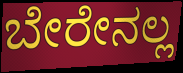
ಬೇರೇನಲ್ಲ